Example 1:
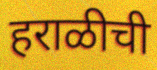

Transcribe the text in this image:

हराळीची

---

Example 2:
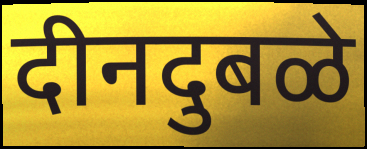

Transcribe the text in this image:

दीनदुबळे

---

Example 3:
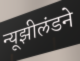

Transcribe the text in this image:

न्यूझीलंडने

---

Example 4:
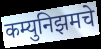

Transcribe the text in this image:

कम्युनिझमचे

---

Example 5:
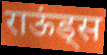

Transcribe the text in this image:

राऊंड्स